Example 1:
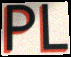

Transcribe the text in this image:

PL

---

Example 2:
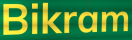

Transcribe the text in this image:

Bikram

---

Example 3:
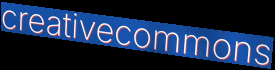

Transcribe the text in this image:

creativecommons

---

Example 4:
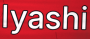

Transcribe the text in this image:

Iyashi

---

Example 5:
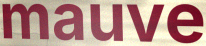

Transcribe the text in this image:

mauve